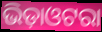
ଭିଡ଼ାଓଟରା